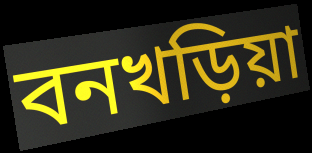
বনখড়িয়া